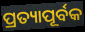
ପ୍ରତ୍ୟାପୂର୍ବକ